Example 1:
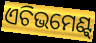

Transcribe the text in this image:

ଏଚିଭମେଣ୍ଟ୍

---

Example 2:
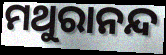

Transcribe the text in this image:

ମଥୁରାନନ୍ଦ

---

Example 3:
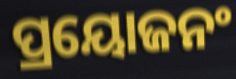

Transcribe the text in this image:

ପ୍ରୟୋଜନଂ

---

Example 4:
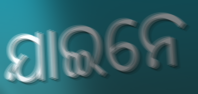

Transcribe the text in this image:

ଯାଇନେ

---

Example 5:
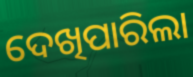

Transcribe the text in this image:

ଦେଖିପାରିଲା